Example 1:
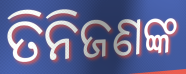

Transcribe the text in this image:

ତିନିଜଣଙ୍କ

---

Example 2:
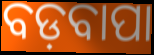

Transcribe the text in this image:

ବଡ଼ବାପା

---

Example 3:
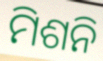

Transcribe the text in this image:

ମିଶନି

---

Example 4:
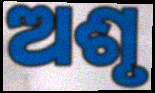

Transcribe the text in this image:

ଅଶୃ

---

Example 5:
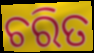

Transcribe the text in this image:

ଚରିତ